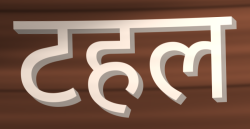
टहल